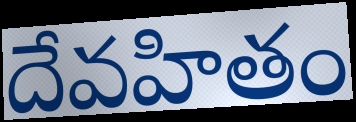
దేవహితం